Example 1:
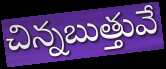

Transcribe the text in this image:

చిన్నబుత్తువే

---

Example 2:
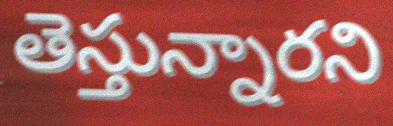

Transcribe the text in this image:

తెస్తున్నారని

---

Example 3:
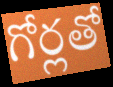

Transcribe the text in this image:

గోర్లతో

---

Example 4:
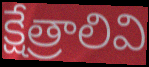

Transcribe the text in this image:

క్షేత్రాలివి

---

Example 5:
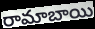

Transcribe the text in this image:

రామాబాయి